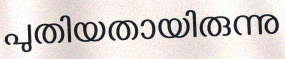
പുതിയതായിരുന്നു